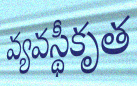
వ్యవస్థీకృత